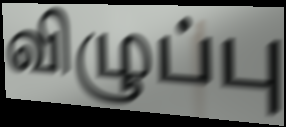
விழுப்பு